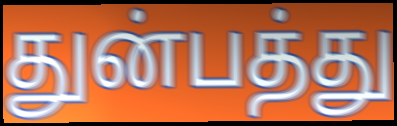
துன்பத்து